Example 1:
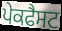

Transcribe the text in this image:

ਪੇਕਫੈਸਟ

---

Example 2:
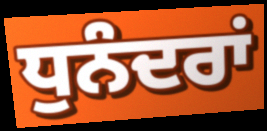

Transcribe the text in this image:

ਧੁਨੰਦਰਾਂ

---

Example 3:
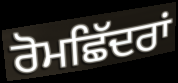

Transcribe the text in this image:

ਰੋਮਛਿੱਦਰਾਂ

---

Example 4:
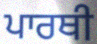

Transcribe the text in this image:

ਪਾਰਥੀ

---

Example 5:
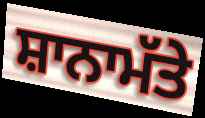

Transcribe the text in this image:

ਸ਼ਾਨਾਮੱਤੇ